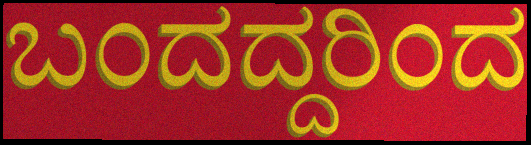
ಬಂದದ್ದರಿಂದ